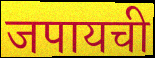
जपायची